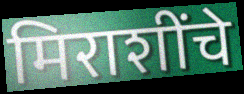
मिराशींचे